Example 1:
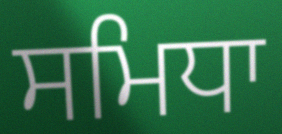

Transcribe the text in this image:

ਸਮਿਧਾ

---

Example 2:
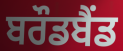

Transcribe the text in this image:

ਬਰੌਡਬੈਂਡ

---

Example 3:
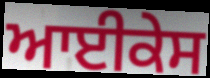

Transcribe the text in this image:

ਆਈਕੇਸ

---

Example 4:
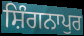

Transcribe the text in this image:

ਸ਼ਿੰਗਨਾਪੁਰ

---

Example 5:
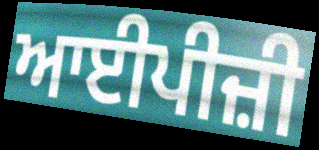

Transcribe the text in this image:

ਆਈਪੀਜ਼ੀ